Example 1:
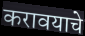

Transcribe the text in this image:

करावयाचे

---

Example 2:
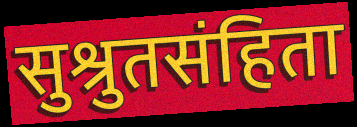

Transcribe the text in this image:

सुश्रुतसंहिता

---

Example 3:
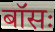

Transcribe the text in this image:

बॉसः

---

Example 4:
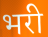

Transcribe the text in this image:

भरी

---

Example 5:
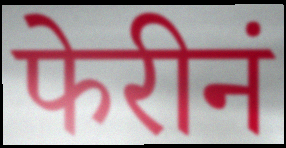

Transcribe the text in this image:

फेरीनं